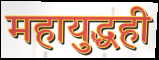
महायुद्धही